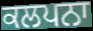
ਕਲਪਨਾ